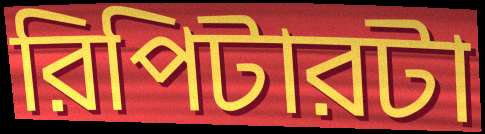
রিপিটারটা